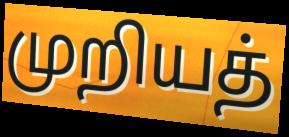
முறியத்